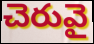
చెరువై